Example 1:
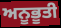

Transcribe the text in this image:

ਅਨੂਭੂਤੀ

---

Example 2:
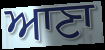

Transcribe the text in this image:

ਆਣਾ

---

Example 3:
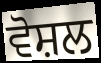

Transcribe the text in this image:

ਵੋਸ਼ਲ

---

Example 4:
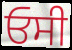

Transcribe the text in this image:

ਓਸੀ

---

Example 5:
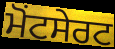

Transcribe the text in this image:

ਮੋਂਟਸੇਰਟ